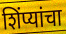
शिंप्यांचा